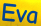
Eva